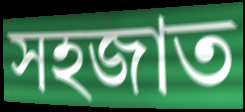
সহজাত